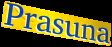
Prasuna